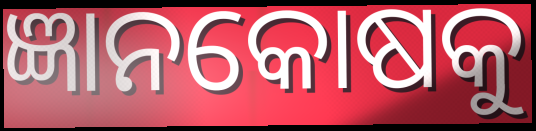
ଜ୍ଞାନକୋଷକୁ